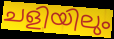
ചളിയിലും